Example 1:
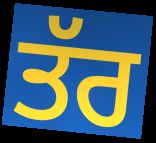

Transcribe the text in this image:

ਤੱਰ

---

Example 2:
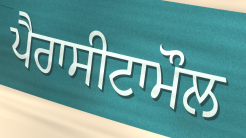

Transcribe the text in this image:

ਪੈਰਾਸੀਟਾਮੌਲ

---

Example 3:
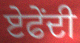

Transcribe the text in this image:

ਏਫੇਂਦੀ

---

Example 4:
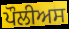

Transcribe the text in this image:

ਪੌਲੀਅਸ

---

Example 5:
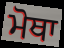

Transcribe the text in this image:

ਮੋਥਾ